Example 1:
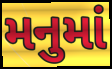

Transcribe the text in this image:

મનુમાં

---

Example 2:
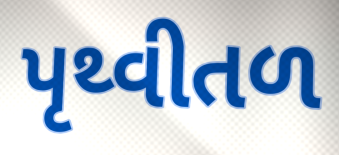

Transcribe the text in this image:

પૃથ્વીતળ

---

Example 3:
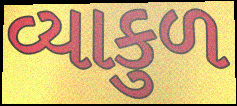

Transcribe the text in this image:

વ્યાકુળ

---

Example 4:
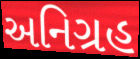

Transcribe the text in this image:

અનિગ્રહ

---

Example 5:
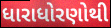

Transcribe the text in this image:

ધારાધોરણોથી